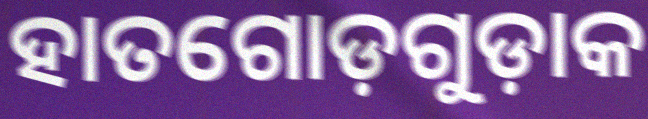
ହାତଗୋଡ଼ଗୁଡ଼ାକ